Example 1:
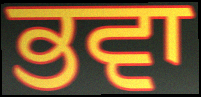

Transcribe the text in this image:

ਭਵਾ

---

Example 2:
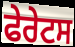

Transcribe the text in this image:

ਫੇਰੇਟਸ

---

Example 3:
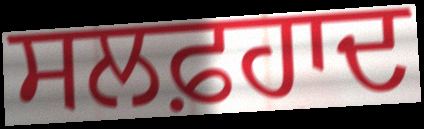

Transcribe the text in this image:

ਸਲਫ਼ਹਾਦ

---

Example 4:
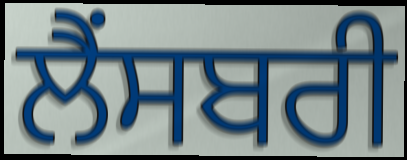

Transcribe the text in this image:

ਲੈਂਸਬਰੀ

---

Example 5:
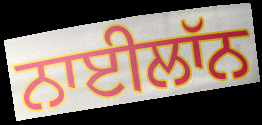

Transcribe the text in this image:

ਨਾਈਲਾੱਨ